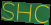
SHC